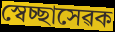
স্বেচ্ছাসেৱক